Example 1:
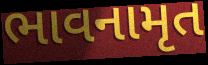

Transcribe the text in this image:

ભાવનામૃત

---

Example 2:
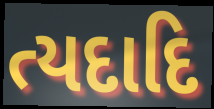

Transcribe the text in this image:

ત્યદાદિ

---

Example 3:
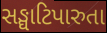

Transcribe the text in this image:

સઙ્ઘાટિપારુતા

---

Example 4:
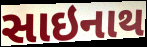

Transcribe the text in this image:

સાઇનાથ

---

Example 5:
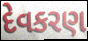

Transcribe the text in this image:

દેવકરણ